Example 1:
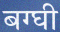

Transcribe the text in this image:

बग्घी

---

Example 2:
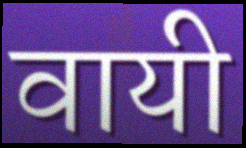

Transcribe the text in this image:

वायी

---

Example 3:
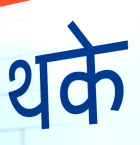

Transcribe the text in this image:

थके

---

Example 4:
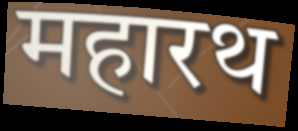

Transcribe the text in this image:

महारथ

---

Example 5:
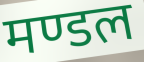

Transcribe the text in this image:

मण्डल